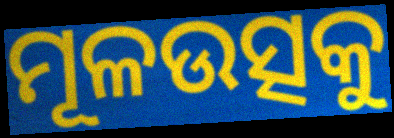
ମୂଳଉତ୍ସକୁ